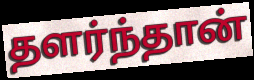
தளர்ந்தான்